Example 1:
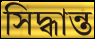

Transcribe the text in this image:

সিদ্ধান্ত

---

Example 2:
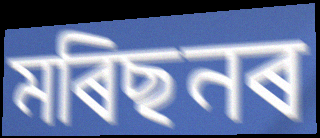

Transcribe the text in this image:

মৰিছনৰ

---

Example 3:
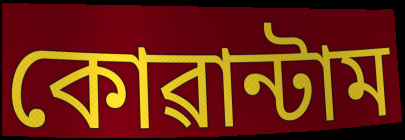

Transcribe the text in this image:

কোৱান্টাম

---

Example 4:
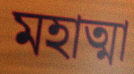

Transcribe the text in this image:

মহাত্মা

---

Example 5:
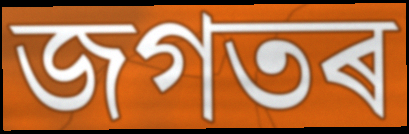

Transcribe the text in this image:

জগতৰ